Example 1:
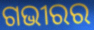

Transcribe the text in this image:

ଗଭୀରର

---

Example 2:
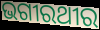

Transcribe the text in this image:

ଭଗୀରଥୀର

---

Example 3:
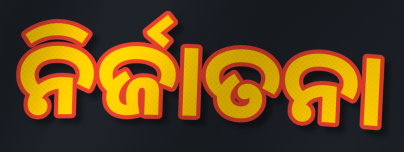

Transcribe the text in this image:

ନିର୍ଜାତନା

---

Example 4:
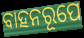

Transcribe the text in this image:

ବାହନରୂପେ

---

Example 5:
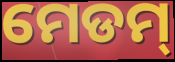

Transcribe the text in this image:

ମେଡମ୍